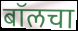
बॉलचा